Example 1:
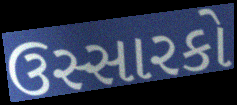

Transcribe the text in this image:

ઉસ્સારકો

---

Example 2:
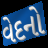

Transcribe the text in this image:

વેદનો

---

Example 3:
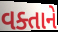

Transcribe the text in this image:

વક્તાને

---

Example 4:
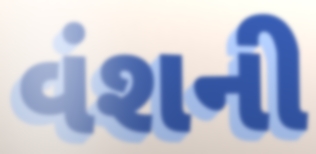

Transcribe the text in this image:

વંશની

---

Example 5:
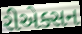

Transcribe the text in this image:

રીએક્સન